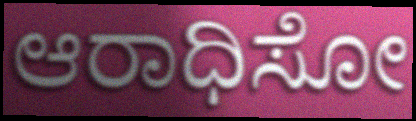
ಆರಾಧಿಸೋ